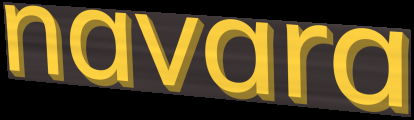
navara